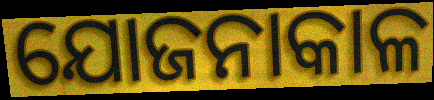
ଯୋଜନାକାଳ